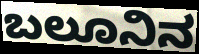
ಬಲೂನಿನ